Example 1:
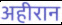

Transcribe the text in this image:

अहीरान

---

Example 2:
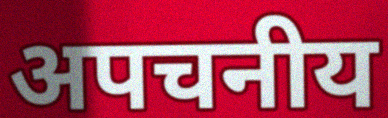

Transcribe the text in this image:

अपचनीय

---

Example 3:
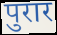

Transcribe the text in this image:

पुरार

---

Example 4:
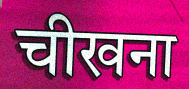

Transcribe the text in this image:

चीखना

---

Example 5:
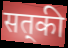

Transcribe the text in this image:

सत्‌की